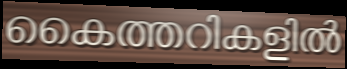
കൈത്തറികളിൽ